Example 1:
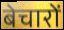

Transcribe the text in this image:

बेचारों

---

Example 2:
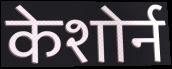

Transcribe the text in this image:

केशोर्न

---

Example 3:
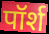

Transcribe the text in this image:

पॉर्श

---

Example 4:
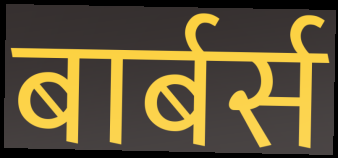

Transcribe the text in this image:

बार्बर्स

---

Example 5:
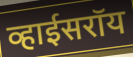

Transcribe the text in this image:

व्हाईसरॉय